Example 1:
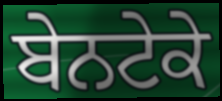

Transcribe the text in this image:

ਬੇਨਟੇਕੇ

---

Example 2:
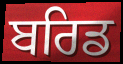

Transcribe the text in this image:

ਬਰਿਡ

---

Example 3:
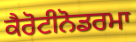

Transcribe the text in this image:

ਕੈਰੋਟੀਨੋਡਰਮਾ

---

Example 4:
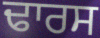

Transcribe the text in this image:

ਢਾਰਸ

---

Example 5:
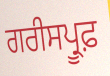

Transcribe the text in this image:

ਗਰੀਸਪ੍ਰੂਫ਼